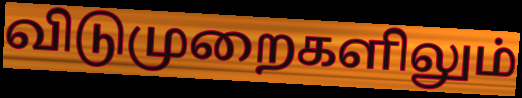
விடுமுறைகளிலும்